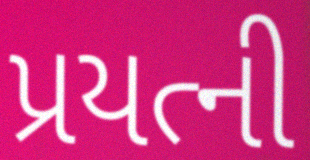
પ્રયત્ની